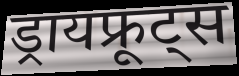
ड्रायफ्रूट्स